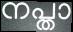
നപ്താ